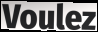
Voulez